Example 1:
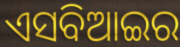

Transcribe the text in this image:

ଏସବିଆଇର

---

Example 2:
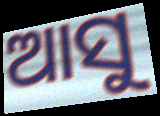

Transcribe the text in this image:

ଆସୁ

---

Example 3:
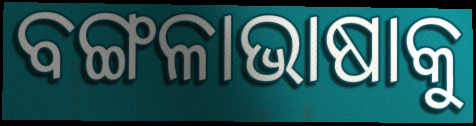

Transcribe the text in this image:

ବଙ୍ଗଳାଭାଷାକୁ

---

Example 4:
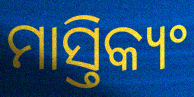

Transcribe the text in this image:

ମାସ୍ତିକ୍ୟଂ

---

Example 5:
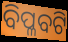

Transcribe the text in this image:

ବିପ୍ଳବଟି